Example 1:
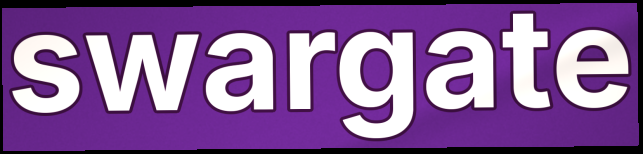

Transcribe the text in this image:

swargate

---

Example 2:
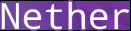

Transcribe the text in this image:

Nether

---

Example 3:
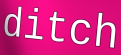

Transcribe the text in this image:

ditch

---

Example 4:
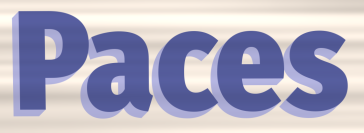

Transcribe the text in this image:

Paces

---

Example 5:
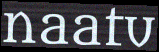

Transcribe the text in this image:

naatu